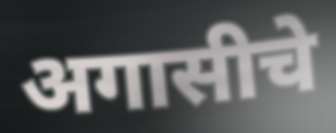
अगासीचे